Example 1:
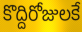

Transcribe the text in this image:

కొద్దిరోజులకే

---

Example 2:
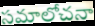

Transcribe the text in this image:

సమాలోచనా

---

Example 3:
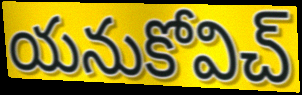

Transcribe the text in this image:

యనుకోవిచ్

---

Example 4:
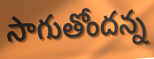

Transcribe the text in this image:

సాగుతోందన్న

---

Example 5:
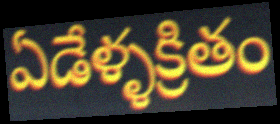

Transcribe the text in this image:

ఏడేళ్ళక్రితం